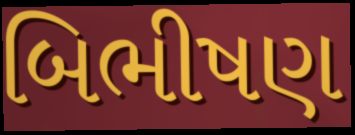
બિભીષણ